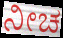
ನೀಚ